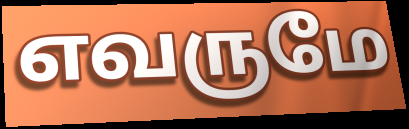
எவருமே